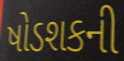
ષોડશકની